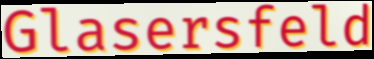
Glasersfeld